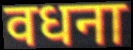
वधना